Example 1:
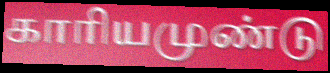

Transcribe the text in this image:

காரியமுண்டு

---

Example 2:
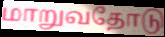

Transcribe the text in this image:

மாறுவதோடு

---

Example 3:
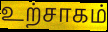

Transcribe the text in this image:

உற்சாகம்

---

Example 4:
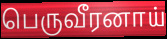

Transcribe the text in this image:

பெருவீரனாய்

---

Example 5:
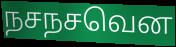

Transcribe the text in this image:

நசநசவென